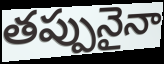
తప్పునైనా